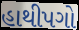
હાથીપગો